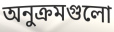
অনুক্রমগুলো